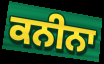
ਕਨੀਨਾ